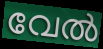
വേൽ